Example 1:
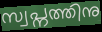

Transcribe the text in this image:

സ്വപ്നത്തിനു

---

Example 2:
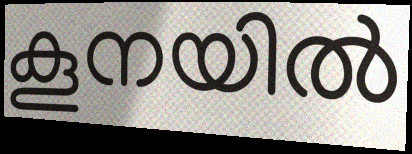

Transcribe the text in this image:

കൂനയിൽ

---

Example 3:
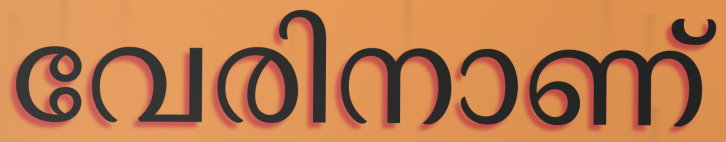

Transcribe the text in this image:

വേരിനാണ്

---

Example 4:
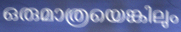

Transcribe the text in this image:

ഒരുമാത്രയെങ്കിലും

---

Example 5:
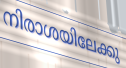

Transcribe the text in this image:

നിരാശയിലേക്കു